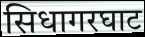
सिधागरघाट